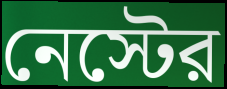
নেস্টের